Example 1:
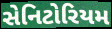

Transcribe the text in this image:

સેનિટોરિયમ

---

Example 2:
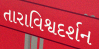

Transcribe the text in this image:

તારાવિશ્વદર્શન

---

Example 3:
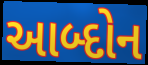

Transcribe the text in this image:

આબ્દોન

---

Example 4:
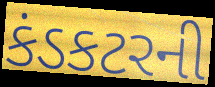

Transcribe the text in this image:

કંડકટરની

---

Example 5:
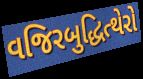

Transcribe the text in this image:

વજિરબુદ્ધિત્થેરો